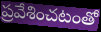
ప్రవేశించటంతో